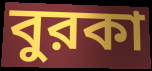
বুরকা